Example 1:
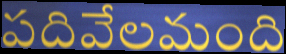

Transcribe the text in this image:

పదివేలమంది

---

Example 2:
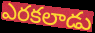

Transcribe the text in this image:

ఎరకలాడు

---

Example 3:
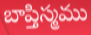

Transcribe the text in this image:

బాప్తిస్మము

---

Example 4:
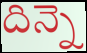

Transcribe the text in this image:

దిన్నె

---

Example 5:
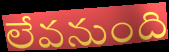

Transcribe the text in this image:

లేవనుంది